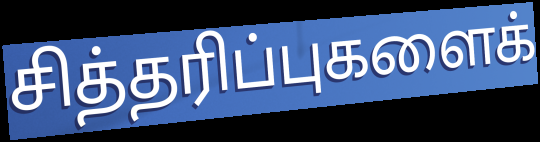
சித்தரிப்புகளைக்